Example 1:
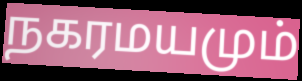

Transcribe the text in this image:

நகரமயமும்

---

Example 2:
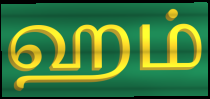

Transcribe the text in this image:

ஹம்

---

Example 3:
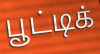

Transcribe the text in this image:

பூட்டிக்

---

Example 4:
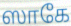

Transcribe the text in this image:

ஸாகே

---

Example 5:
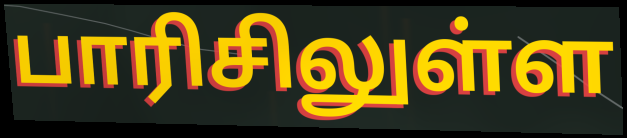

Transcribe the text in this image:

பாரிசிலுள்ள